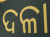
ଦଳା